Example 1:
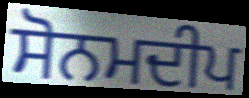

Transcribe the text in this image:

ਸੋਨਮਦੀਪ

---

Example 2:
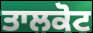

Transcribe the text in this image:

ਤਾਲਕੋਟ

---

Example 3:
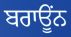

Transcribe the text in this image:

ਬਰਾਊਂਨ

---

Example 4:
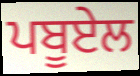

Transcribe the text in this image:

ਪਬੂਏਲ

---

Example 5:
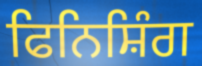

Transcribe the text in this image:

ਫਿਨਿਸ਼ਿੰਗ